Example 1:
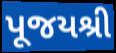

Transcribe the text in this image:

પૂજયશ્રી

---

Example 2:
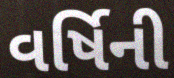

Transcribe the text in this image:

વર્ષિની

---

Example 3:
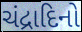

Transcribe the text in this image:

ચંદ્રાદિનો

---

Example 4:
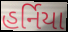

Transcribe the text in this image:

હર્નિયા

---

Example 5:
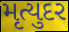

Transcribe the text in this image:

મૃત્યુદર